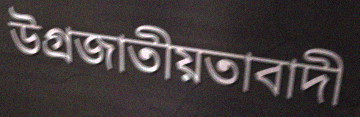
উগ্ৰজাতীয়তাবাদী